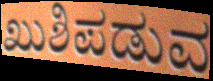
ಖುಶಿಪಡುವ